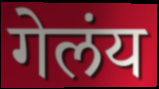
गेलंय